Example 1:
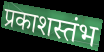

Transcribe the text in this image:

प्रकाशस्तंभ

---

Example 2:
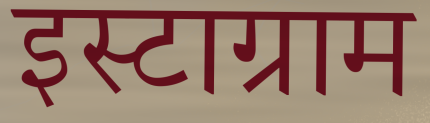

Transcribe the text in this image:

इस्टाग्राम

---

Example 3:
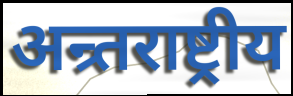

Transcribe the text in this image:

अन्र्तराष्ट्रीय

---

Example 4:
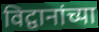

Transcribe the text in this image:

विद्वानांच्या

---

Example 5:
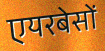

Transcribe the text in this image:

एयरबेसों